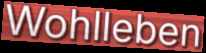
Wohlleben